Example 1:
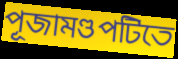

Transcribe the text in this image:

পূজামণ্ডপটিতে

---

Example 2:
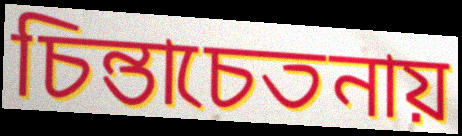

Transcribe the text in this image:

চিন্তাচেতনায়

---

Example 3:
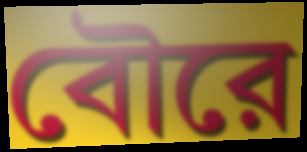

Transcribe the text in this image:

বৌরে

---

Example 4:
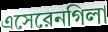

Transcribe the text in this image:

এসেরেনগিলা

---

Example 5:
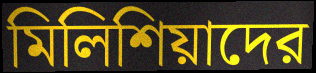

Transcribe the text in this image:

মিলিশিয়াদের